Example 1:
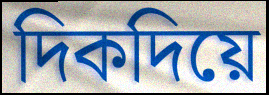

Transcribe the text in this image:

দিকদিয়ে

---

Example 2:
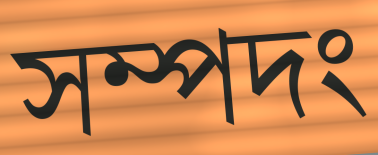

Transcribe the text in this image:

সম্পদং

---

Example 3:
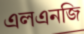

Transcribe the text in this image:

এলএনজি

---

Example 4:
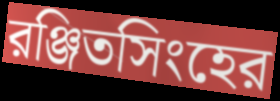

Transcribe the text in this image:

রঞ্জিতসিংহের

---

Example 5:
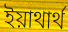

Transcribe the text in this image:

ইয়াথার্থ